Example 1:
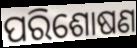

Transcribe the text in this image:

ପରିଶୋଷଣ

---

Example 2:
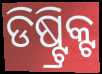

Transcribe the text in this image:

ଡିଷ୍ଟ୍ରିକ୍ଟ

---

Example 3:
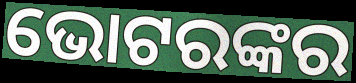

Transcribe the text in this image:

ଭୋଟରଙ୍କର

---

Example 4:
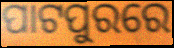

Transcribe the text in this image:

ପାଟପୁରରେ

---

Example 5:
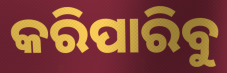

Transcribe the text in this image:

କରିପାରିବୁ